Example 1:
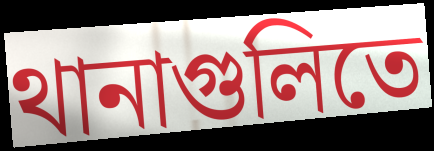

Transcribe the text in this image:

থানাগুলিতে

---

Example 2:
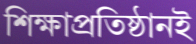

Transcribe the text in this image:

শিক্ষাপ্রতিষ্ঠানই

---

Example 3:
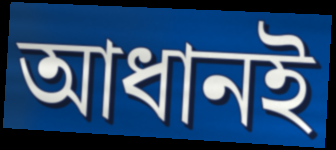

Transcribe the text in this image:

আধানই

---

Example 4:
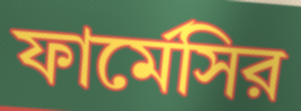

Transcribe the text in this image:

ফার্মেসির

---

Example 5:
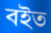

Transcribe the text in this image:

বইত